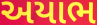
અયાભ